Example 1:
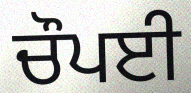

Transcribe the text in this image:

ਚੌਪਈ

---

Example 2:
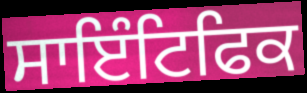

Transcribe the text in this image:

ਸਾਇੰਟਿਫਿਕ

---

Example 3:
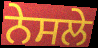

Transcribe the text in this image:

ਨੇਸਲੇ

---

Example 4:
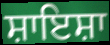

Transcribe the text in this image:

ਸ਼ਾਇਸ਼ਾ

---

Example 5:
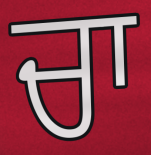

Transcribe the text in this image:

ਚਾ